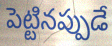
పెట్టినప్పుడే